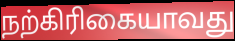
நற்கிரிகையாவது